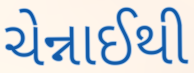
ચેન્નાઈથી